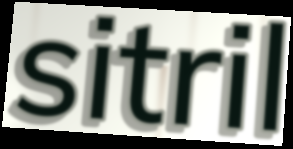
sitril